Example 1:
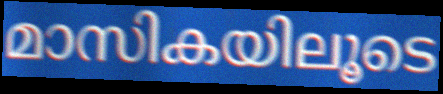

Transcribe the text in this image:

മാസികയിലൂടെ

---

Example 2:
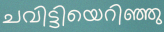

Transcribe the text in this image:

ചവിട്ടിയെറിഞ്ഞു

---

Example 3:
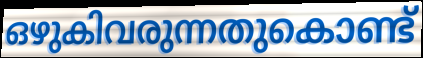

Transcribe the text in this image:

ഒഴുകിവരുന്നതുകൊണ്ട്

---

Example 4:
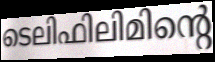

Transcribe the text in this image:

ടെലിഫിലിമിന്റെ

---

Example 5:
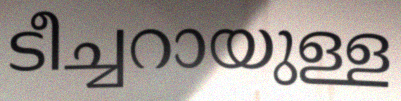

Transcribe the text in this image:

ടീച്ചറായുള്ള